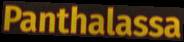
Panthalassa